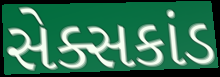
સેક્સકાંડ